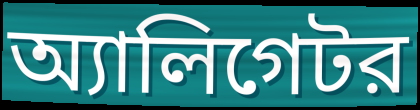
অ্যালিগেটর